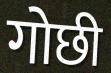
गोछी